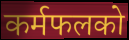
कर्मफलको